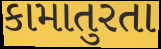
કામાતુરતા